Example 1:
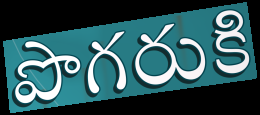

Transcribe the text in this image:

పొగరుకి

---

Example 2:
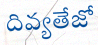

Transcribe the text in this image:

దివ్యతేజో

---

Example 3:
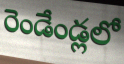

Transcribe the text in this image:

రెండేండ్లలో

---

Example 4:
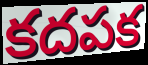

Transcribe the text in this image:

కదపక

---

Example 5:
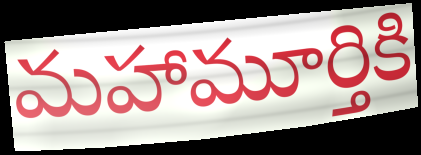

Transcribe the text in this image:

మహామూర్తికి